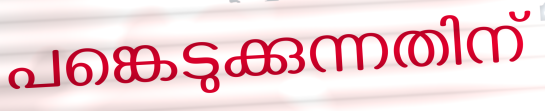
പങ്കെടുക്കുന്നതിന്